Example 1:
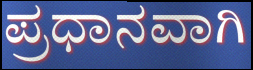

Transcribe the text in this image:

ಪ್ರಧಾನವಾಗಿ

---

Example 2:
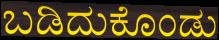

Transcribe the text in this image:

ಬಡಿದುಕೊಂಡು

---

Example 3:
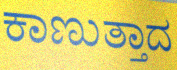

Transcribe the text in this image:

ಕಾಣುತ್ತಾದ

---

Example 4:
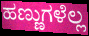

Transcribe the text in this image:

ಹಣ್ಣುಗಳೆಲ್ಲ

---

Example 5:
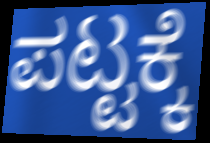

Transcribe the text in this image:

ಪಟ್ಟಕ್ಕೆ